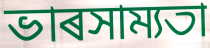
ভাৰসাম্যতা